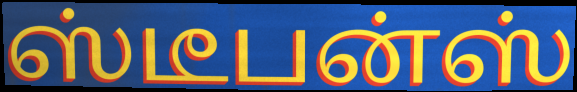
ஸ்டீபன்ஸ்